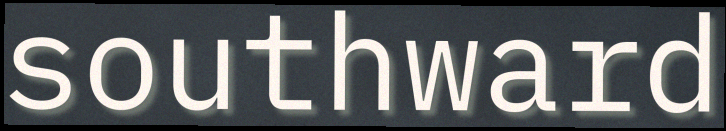
southward